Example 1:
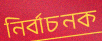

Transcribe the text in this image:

নিৰ্বাচনক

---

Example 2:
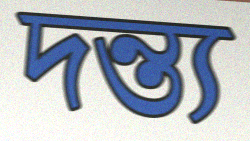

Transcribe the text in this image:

দন্ত্য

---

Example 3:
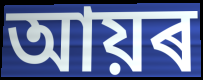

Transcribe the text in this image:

আয়ৰ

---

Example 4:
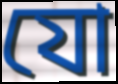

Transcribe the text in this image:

যো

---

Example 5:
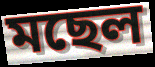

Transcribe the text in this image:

মছেল